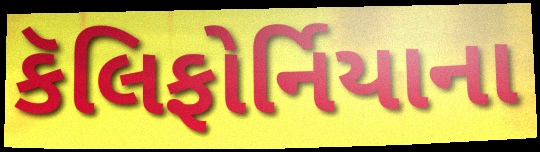
કૅલિફોર્નિયાના